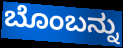
ಬೊಂಬನ್ನು